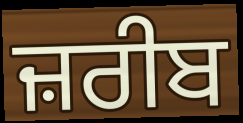
ਜ਼ਰੀਬ